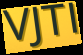
VJTI